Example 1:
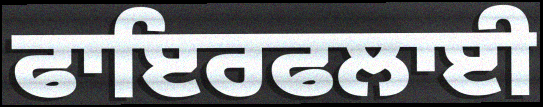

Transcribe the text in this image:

ਫਾਇਰਫਲਾਈ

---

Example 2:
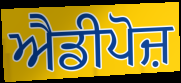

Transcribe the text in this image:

ਐਡੀਪੋਜ਼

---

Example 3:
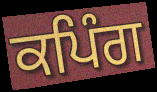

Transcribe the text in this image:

ਕਪਿੰਗ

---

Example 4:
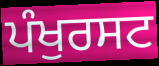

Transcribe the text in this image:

ਪੰਖੁਰਸਟ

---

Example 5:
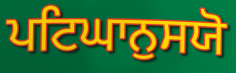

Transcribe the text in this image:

ਪਟਿਘਾਨੁਸਯੋ